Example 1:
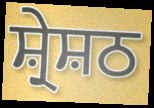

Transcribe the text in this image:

ਸ਼੍ਰੇਸ਼ਠ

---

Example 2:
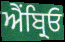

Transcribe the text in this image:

ਐਂਬ੍ਰਿਓ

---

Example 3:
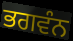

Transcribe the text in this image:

ਭਗਵੰਨ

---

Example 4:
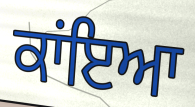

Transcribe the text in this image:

ਕਾਂਇਆ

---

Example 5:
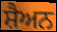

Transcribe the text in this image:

ਸ਼ੈਅਨ